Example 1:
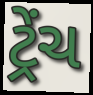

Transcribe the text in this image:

ટ્રેંચ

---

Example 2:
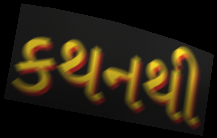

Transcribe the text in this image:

કથનથી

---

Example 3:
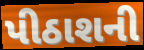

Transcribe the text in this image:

પીઠાશની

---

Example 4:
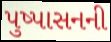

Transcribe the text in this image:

પુષ્પાસનની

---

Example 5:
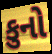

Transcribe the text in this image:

કુનો